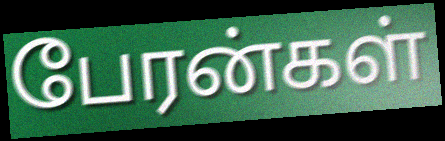
பேரன்கள்